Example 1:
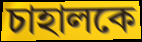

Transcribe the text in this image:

চাহালকে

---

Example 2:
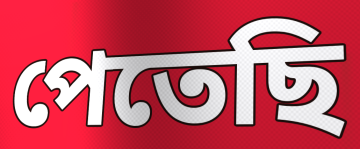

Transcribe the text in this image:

পেতেছি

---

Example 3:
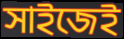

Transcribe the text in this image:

সাইজেই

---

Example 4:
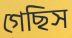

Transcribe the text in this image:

গেছিস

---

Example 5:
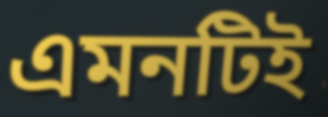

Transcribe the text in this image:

এমনটিই